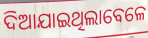
ଦିଆଯାଇଥିଲାବେଳେ